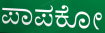
ಪಾಪಕೋ